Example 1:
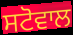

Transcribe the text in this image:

ਸਟੋਵਾਲ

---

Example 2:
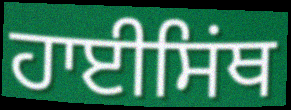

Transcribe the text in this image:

ਹਾਈਸਿਂਥ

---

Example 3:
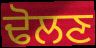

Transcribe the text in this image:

ਢੋਲਣ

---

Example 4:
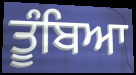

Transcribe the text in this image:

ਤੂੰਬਿਆ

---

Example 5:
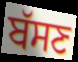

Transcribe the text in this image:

ਬੱਸਣ